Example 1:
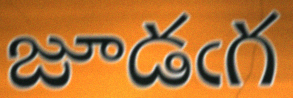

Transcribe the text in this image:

జూడఁగ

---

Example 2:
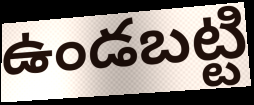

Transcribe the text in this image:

ఉండబట్టి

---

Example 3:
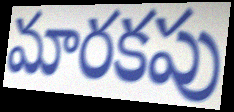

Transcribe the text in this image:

మారకపు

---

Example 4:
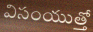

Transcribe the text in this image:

విసంయుత్తో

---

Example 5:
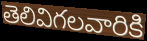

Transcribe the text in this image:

తెలివిగలవారికి